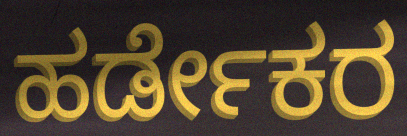
ಹರ್ಡೇಕರ